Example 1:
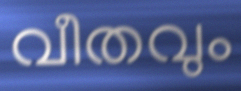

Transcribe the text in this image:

വീതവും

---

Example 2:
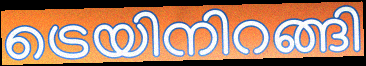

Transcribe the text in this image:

ട്രെയിനിറങ്ങി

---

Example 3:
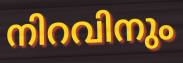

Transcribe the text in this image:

നിറവിനും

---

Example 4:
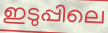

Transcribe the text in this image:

ഇടുപ്പിലെ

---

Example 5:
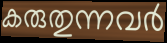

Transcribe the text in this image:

കരുതുന്നവർ